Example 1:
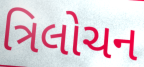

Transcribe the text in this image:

ત્રિલોચન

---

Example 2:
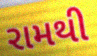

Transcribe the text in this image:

રામથી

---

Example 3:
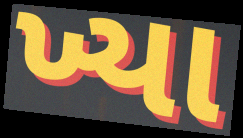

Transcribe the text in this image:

ખ્યા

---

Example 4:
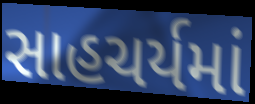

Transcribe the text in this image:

સાહચર્યમાં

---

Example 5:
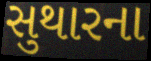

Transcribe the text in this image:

સુથારના